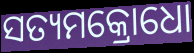
ସତ୍ୟମକ୍ରୋଧୋ